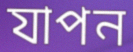
যাপন